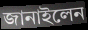
জানাইলেন